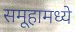
समूहामध्ये